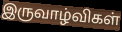
இருவாழ்விகள்